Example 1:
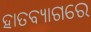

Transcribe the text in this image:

ହାତବ୍ୟାଗରେ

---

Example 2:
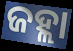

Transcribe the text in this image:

ଜହ୍ଲା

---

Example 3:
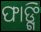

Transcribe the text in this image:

ଫାଙ୍ଗି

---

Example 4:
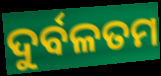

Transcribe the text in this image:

ଦୁର୍ବଳତମ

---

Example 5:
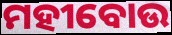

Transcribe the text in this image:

ମହୀବୋଉ